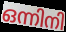
ഒന്നിനി